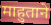
माहुताने